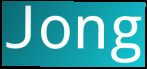
Jong